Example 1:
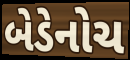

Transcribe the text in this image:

બેડેનોચ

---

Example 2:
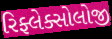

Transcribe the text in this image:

રિફ્લેક્સોલોજી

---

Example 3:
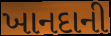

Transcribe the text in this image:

ખાનદાની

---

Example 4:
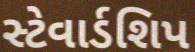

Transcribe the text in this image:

સ્ટેવાર્ડશિપ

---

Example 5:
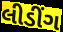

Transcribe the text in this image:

લીડીંગ